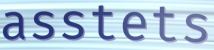
asstets